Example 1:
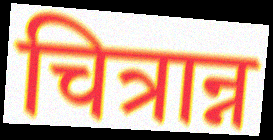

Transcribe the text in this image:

चित्रान्न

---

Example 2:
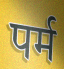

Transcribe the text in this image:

पर्म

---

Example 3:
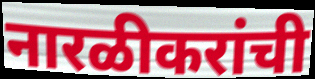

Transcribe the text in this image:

नारळीकरांची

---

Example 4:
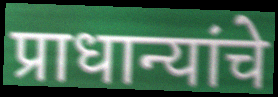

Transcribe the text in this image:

प्राधान्यांचे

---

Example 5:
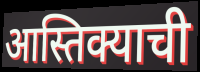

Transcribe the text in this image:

आस्तिक्याची